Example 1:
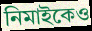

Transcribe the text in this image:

নিমাইকেও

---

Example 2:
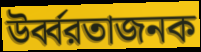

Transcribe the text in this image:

উর্ব্বরতাজনক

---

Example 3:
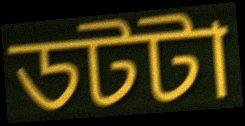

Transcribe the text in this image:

ডটটা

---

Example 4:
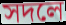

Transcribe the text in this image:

সদলে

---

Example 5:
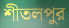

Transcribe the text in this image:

শীতলপুর